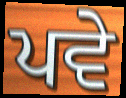
ਪਵੇ